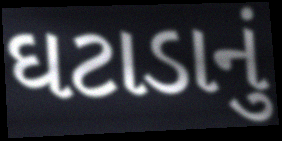
ઘટાડાનું